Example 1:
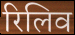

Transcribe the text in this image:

रिलिव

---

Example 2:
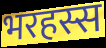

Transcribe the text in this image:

भरहस्स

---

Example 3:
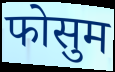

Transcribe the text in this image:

फोसुम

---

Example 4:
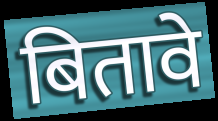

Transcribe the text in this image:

बितावे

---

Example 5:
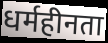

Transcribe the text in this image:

धर्महीनता